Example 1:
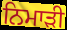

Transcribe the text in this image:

ਨਿਮਾੜੀ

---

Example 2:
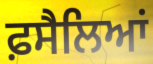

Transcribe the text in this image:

ਫ਼ਸੈਲਿਆਂ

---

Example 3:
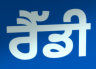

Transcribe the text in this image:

ਰੈੱਡੀ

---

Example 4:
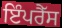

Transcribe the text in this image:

ਇੰਪਰੈੱਸ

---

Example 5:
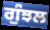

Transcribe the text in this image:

ਗੁੰਝਲ